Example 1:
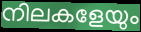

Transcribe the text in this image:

നിലകളേയും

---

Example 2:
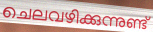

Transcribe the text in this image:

ചെലവഴിക്കുന്നുണ്ട്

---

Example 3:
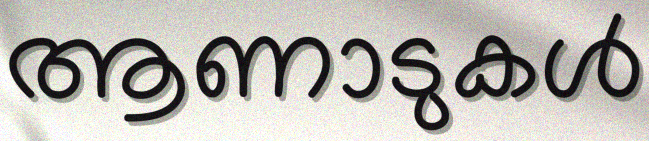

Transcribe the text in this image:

ആണാടുകൾ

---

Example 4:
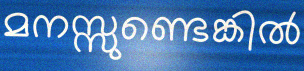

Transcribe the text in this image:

മനസ്സുണ്ടെങ്കിൽ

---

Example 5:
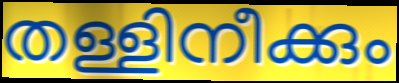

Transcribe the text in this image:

തള്ളിനീക്കും